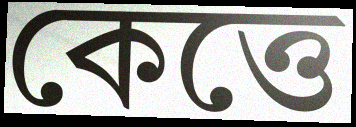
কেত্তে